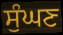
ਸੁੰਘਣ